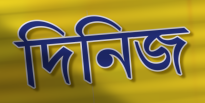
দিনিজ